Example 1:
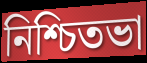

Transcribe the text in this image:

নিশ্চিতভা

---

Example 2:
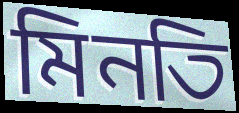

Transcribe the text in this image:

মিনতি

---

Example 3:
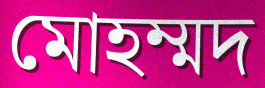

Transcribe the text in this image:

মোহম্মদ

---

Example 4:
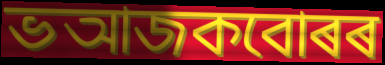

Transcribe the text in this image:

ভআজকবোৰৰ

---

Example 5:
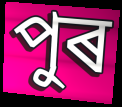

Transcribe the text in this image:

পুৰ